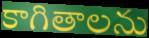
కాగితాలను